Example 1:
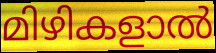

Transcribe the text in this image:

മിഴികളാൽ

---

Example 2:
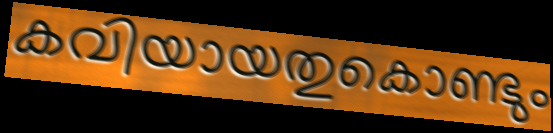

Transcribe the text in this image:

കവിയായതുകൊണ്ടും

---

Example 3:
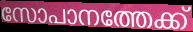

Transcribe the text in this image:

സോപാനത്തേക്ക്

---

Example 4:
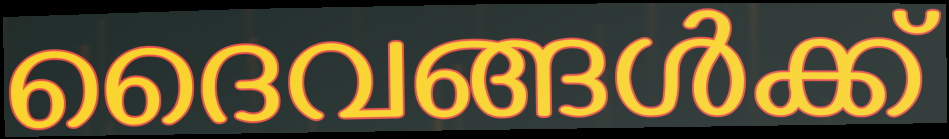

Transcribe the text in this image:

ദൈവങ്ങൾക്ക്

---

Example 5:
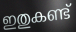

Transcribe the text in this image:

ഇതുകണ്ട്